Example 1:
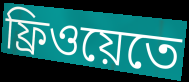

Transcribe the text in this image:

ফ্রিওয়েতে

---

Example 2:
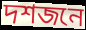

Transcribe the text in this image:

দশজনে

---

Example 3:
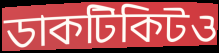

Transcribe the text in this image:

ডাকটিকিটও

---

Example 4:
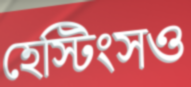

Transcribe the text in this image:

হেস্টিংসও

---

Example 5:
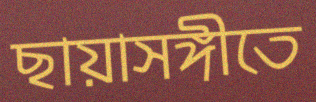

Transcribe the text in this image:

ছায়াসঙ্গীতে